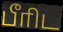
பீரிட